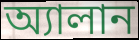
অ্যালান